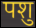
पशु